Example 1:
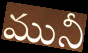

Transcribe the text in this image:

మునీ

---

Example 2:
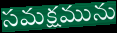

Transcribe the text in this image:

సమక్షమును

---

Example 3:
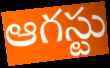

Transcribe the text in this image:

ఆగస్టు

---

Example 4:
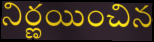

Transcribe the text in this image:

నిర్ణయించిన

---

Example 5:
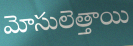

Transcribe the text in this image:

మోసులెత్తాయి